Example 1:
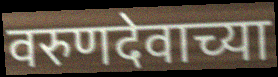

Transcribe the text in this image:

वरुणदेवाच्या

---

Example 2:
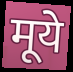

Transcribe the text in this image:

मूये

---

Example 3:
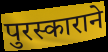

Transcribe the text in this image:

पुरस्काराने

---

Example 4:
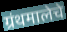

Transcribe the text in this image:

ग्रंथमालेचे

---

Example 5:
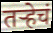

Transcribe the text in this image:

तर्‍हेचं